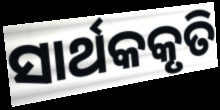
ସାର୍ଥକକୃତି